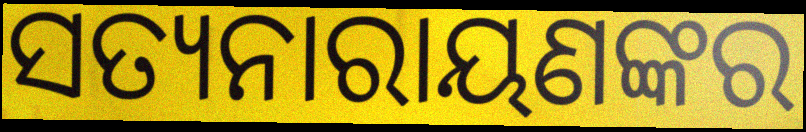
ସତ୍ୟନାରାୟଣଙ୍କର